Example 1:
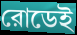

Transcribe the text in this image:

রোডেই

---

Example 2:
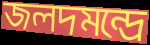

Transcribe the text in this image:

জলদমন্দ্রে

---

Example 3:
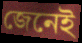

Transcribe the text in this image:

জেনেই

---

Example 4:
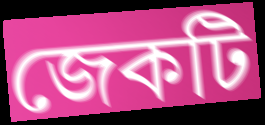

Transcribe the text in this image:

জেকটি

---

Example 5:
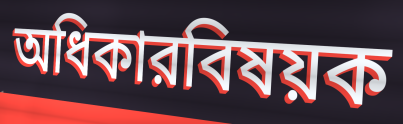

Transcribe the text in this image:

অধিকারবিষয়ক